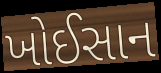
ખોઈસાન